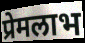
प्रेमलाभ